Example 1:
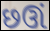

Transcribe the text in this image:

છઊં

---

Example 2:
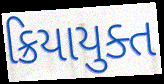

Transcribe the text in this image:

ક્રિયાયુક્ત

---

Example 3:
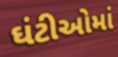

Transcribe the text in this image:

ઘંટીઓમાં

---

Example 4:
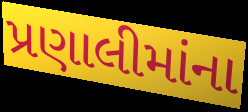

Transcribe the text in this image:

પ્રણાલીમાંના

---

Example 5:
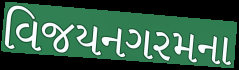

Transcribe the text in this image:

વિજયનગરમના